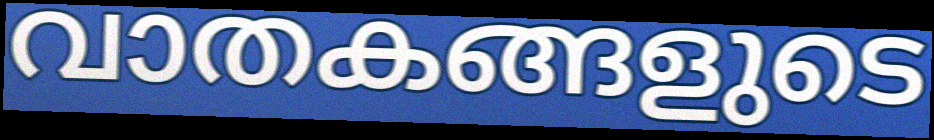
വാതകങ്ങളുടെ